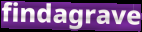
findagrave